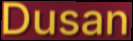
Dusan